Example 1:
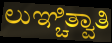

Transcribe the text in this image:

ಲುಞ್ಚಿತ್ವಾತಿ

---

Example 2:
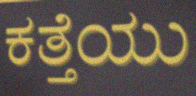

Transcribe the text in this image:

ಕತ್ತೆಯು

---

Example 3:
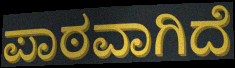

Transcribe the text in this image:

ಪಾಠವಾಗಿದೆ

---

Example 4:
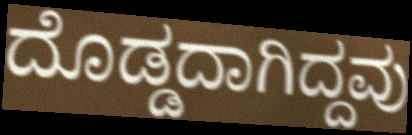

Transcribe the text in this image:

ದೊಡ್ಡದಾಗಿದ್ದವು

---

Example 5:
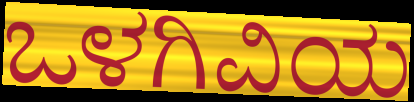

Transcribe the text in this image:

ಒಳಗಿವಿಯ